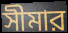
সীমার